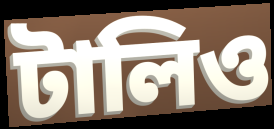
টালিও